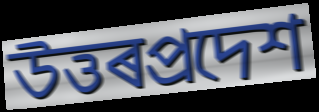
উত্তৰপ্ৰদেশ